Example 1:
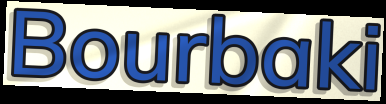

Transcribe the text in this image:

Bourbaki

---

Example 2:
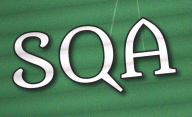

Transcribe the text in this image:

SQA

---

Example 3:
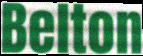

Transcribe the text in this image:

Belton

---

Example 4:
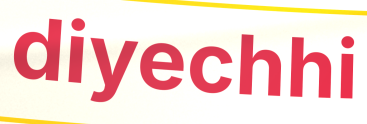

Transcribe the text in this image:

diyechhi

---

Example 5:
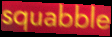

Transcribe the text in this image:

squabble